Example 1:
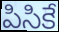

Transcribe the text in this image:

పిసికే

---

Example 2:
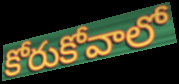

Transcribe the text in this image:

కోరుకోవాలో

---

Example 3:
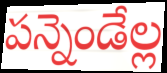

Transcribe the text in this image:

పన్నెండేల్ల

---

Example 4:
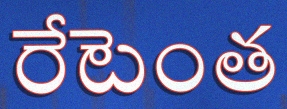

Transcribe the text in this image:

రేటెంత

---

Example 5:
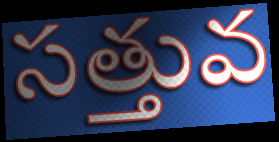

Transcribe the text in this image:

సత్తువ